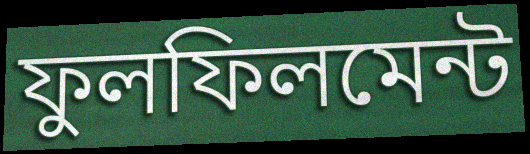
ফুলফিলমেন্ট